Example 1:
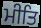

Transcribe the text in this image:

ਮੀਤਿ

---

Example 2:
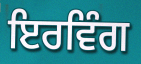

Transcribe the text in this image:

ਇਰਵਿੰਗ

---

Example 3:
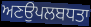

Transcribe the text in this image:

ਅਣਉਪਲਬਧਤਾ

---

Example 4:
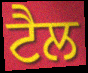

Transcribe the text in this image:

ਟੈਲ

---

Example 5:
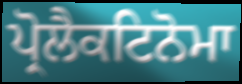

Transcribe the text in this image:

ਪ੍ਰੋਲੈਕਟਿਨੋਮਾ